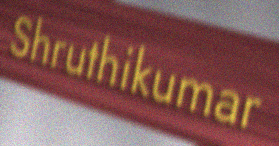
Shruthikumar